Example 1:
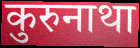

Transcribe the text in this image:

कुरुनाथा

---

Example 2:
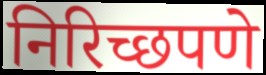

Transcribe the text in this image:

निरिच्छपणे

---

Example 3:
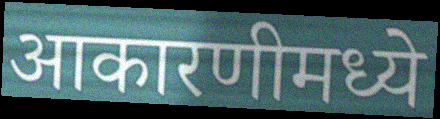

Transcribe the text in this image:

आकारणीमध्ये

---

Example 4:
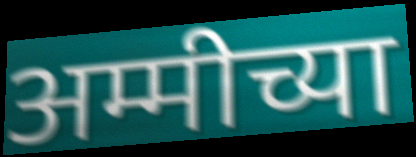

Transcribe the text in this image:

अम्मीच्या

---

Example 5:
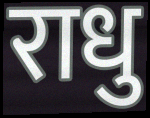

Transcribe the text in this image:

राधु